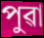
পুৱা